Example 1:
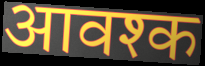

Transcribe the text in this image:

आवश्क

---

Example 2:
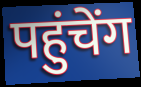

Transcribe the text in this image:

पहुंचेंग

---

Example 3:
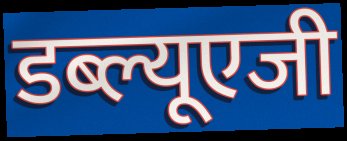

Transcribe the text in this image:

डब्ल्यूएजी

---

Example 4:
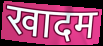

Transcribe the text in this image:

खादम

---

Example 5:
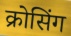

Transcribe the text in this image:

क्रोसिंग